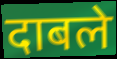
दाबले